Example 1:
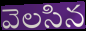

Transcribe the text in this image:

వెలసిన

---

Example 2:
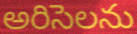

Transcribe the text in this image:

అరిసెలను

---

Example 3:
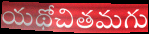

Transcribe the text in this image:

యథోచితమగు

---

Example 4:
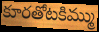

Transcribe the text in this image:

కూరతోటకిమ్ము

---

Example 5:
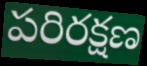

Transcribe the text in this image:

పరిరక్షణ